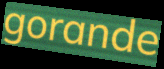
gorande